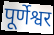
पूर्णेश्वर